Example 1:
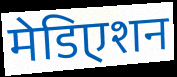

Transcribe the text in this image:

मेडिएशन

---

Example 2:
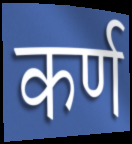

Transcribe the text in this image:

कर्ण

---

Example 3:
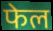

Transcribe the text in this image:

फेल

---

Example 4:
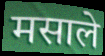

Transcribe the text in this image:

मसाले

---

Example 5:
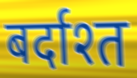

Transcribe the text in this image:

बर्दाश्त